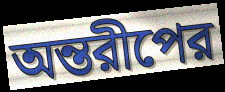
অন্তরীপের